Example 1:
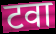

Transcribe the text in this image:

टवा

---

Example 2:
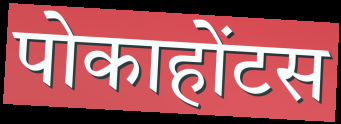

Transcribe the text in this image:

पोकाहोंटस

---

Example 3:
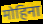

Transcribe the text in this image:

मोहिना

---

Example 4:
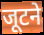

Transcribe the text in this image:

जूटने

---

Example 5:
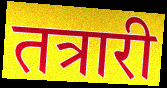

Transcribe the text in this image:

तत्रारी